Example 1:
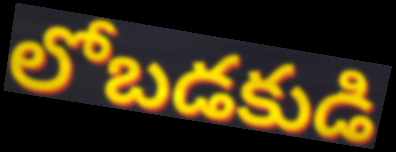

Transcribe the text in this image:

లోబడకుడి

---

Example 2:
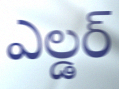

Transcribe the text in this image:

ఎల్డర్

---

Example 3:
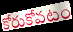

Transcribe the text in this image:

కోరుకోవటం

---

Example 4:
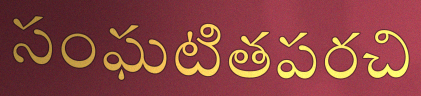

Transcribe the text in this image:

సంఘటితపరచి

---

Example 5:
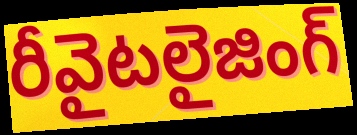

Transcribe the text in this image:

రీవైటలైజింగ్